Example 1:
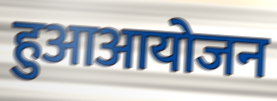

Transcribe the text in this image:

हुआआयोजन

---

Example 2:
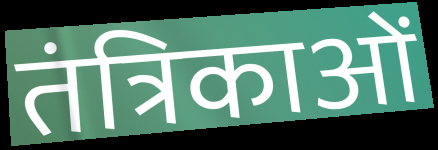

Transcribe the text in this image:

तंत्रिकाओं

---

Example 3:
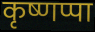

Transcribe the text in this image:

कृष्‍णप्‍पा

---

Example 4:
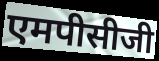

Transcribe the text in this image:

एमपीसीजी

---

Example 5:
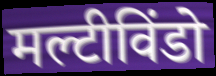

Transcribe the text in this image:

मल्टीविंडो